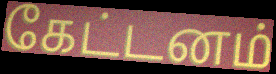
கேட்டனம்